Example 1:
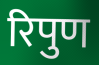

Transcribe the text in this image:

रिपुण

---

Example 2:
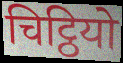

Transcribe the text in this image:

चिट्ठियो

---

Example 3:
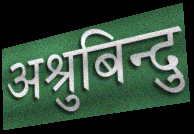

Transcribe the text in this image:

अश्रुबिन्दु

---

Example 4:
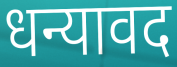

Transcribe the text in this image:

धन्यावद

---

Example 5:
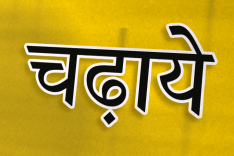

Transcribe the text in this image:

चढ़ाये